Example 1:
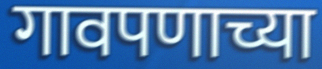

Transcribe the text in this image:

गावपणाच्या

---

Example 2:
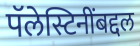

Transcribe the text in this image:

पॅलेस्टिनींबद्दल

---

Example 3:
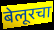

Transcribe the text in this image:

बेलूरचा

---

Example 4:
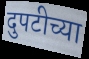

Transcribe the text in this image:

दुपटीच्या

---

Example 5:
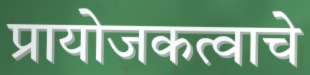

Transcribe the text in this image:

प्रायोजकत्वाचे